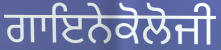
ਗਾਇਨੇਕੋਲੋਜੀ